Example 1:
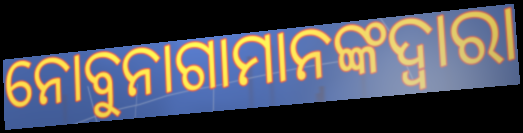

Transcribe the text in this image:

ନୋବୁନାଗାମାନଙ୍କଦ୍ୱାରା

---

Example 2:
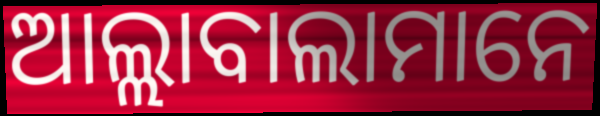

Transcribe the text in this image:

ଆଲ୍ଲାବାଲାମାନେ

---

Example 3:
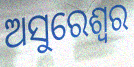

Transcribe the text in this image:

ଅସୁରେଶ୍ୱର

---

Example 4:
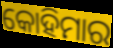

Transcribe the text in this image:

କୋହିମାର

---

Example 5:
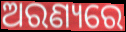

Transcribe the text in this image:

ଅରଣ୍ୟରେ